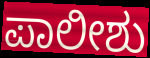
ಪಾಲೀಶು